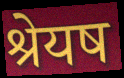
श्रेयष